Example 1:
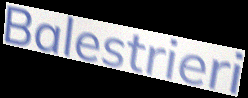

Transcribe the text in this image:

Balestrieri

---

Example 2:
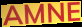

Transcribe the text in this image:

AMNE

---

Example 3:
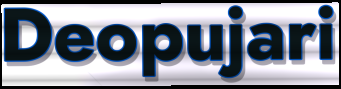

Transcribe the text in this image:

Deopujari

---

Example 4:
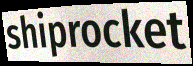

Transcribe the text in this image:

shiprocket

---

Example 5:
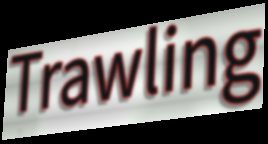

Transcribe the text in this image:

Trawling